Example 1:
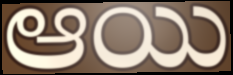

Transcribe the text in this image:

ఆయి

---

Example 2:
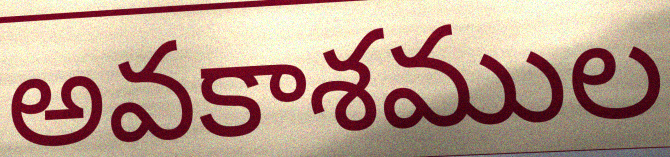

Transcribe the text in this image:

అవకాశముల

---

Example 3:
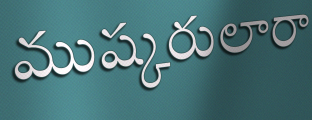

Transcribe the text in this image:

ముష్కరులారా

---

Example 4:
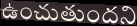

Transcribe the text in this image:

ఉంచుతుందని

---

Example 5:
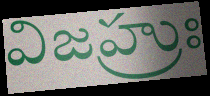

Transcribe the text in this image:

విజహ్రుః